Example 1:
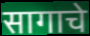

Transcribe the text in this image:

सागाचे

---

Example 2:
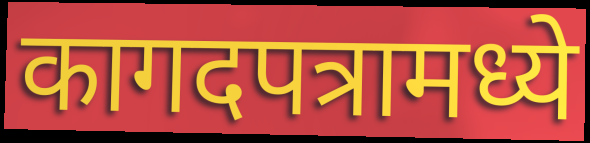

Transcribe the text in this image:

कागदपत्रामध्ये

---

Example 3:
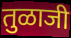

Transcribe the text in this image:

तुळाजी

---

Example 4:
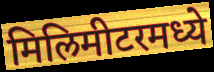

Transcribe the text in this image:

मिलिमीटरमध्ये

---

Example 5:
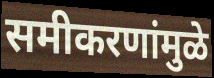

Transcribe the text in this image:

समीकरणांमुळे